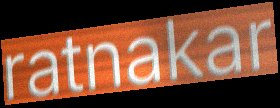
ratnakar